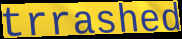
trrashed